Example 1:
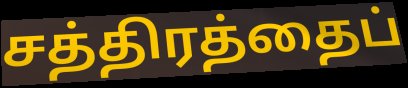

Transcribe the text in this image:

சத்திரத்தைப்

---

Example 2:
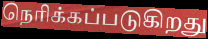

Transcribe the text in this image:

நெரிக்கப்படுகிறது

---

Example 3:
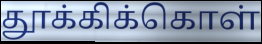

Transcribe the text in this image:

தூக்கிக்கொள்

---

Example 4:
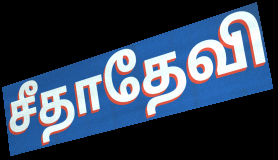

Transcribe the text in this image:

சீதாதேவி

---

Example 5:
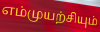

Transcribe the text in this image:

எம்முயற்சியும்